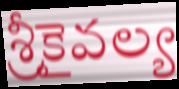
శ్రీకైవల్య